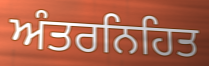
ਅੰਤਰਨਿਹਿਤ